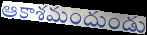
ఆకాశమందుండు